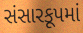
સંસારકૂપમાં